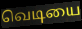
வெடியை